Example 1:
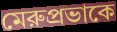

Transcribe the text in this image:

মেরুপ্রভাকে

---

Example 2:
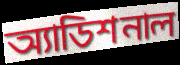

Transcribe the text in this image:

অ্যাডিশনাল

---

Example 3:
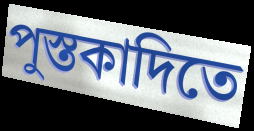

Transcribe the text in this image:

পুস্তকাদিতে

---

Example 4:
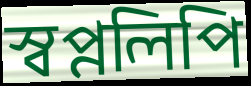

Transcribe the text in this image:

স্বপ্নলিপি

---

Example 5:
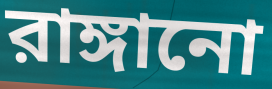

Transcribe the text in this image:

রাঙ্গানো